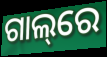
ଗାଲ୍‌ରେ